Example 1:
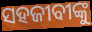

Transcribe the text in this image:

ସହଜୀବୀଙ୍କୁ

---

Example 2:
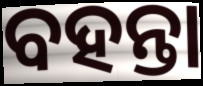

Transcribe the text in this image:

ବହନ୍ତା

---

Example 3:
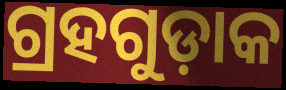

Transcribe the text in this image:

ଗ୍ରହଗୁଡ଼ାକ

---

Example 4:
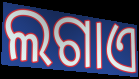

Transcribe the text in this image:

ଲଗାଏ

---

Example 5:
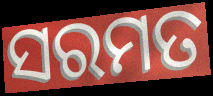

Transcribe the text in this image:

ସରମତ